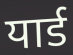
यार्ड